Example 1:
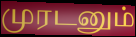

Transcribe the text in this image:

முரடனும்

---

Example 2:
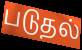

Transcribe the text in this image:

படுதல்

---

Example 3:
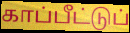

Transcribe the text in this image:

காப்பீட்டுப்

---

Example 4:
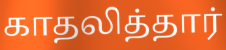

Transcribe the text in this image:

காதலித்தார்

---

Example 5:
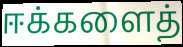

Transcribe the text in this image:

ஈக்களைத்